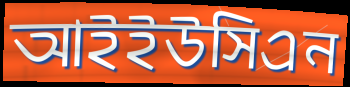
আইইউসিএন